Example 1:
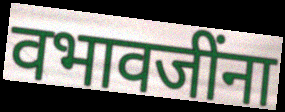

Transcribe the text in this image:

वभावजींना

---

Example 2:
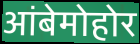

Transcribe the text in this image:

आंबेमोहोर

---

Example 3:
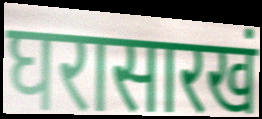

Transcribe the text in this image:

घरासारखं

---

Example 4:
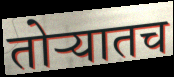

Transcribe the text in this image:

तोऱ्यातच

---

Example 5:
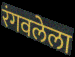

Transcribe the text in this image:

रंगवलेला